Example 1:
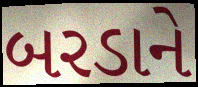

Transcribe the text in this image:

બરડાને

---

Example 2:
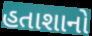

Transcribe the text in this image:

હતાશાનો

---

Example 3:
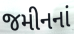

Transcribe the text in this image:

જમીનનાં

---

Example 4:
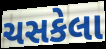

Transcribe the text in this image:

ચસકેલા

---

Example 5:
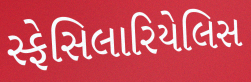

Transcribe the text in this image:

સ્ફેસિલારિયેલિસ